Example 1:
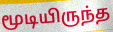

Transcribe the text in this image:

மூடியிருந்த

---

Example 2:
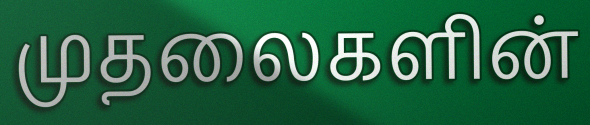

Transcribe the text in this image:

முதலைகளின்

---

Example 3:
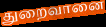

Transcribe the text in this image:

துறைவானை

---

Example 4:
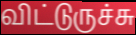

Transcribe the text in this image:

விட்டுருச்சு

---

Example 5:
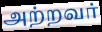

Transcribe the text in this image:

அற்றவர்